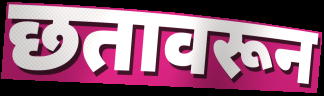
छतावरून